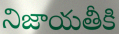
నిజాయతీకి